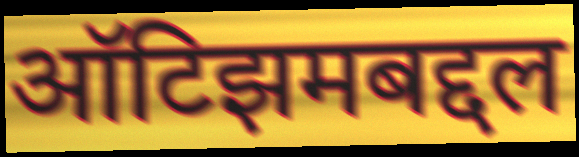
ऑटिझमबद्दल